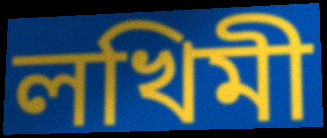
লখিমী